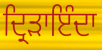
ਦ੍ਰਿੜਾਇੰਦਾ